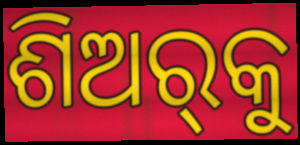
ଶିଅର୍‌କୁ